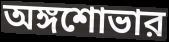
অঙ্গশোভার